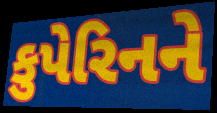
કુપેરિનને